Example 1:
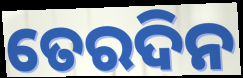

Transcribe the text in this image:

ତେରଦିନ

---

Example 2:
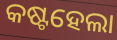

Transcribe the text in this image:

କଷ୍ଟହେଲା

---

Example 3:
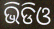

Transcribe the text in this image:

ଭିଡିଓ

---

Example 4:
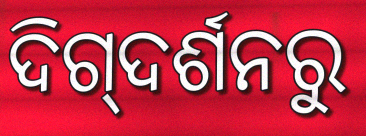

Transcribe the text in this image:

ଦିଗ୍‌ଦର୍ଶନରୁ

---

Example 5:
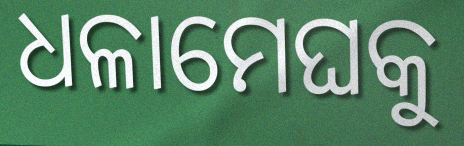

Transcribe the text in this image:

ଧଳାମେଘକୁ